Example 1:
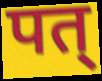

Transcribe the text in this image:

पत्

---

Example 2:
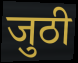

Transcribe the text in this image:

जुठी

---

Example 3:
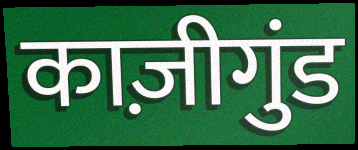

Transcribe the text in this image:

काज़ीगुंड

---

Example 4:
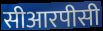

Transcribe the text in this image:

सीआरपीसी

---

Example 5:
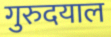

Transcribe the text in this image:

गुरुदयाल